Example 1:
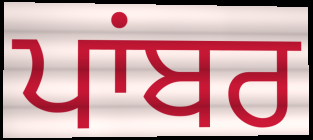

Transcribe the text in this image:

ਪਾਂਬਰ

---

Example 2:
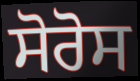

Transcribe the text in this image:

ਸੋਰੋਸ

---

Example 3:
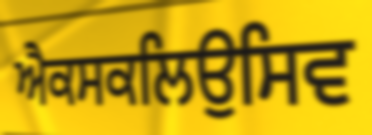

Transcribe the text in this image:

ਐਕਸਕਲਿਉਸਿਵ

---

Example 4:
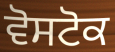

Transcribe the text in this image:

ਵੋਸਟੋਕ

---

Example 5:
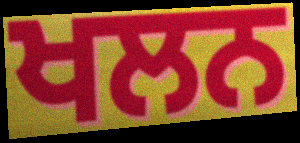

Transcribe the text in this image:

ਖਲਨ